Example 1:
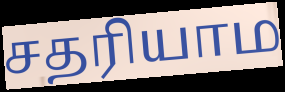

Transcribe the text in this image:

சதரியாம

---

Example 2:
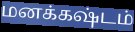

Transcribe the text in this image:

மனக்கஷ்டம்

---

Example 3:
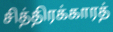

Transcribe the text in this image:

சித்திரக்காரத்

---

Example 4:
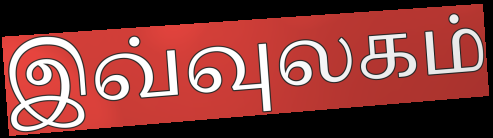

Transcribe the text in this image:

இவ்வுலகம்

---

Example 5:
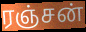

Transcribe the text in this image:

ரஞ்சன்